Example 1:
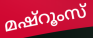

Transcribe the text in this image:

മഷ്റൂംസ്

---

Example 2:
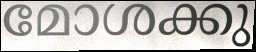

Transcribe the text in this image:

മോശക്കു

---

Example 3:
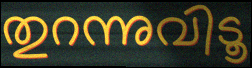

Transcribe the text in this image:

തുറന്നുവിടൂ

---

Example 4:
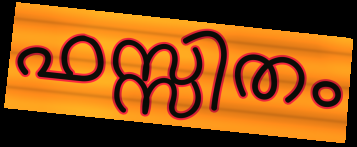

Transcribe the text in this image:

ഫസ്സിതം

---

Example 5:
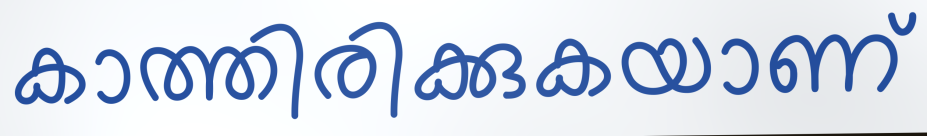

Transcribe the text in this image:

കാത്തിരിക്കുകയാണ്